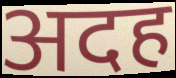
अदह